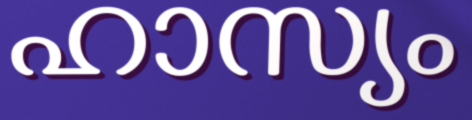
ഹാസ്യം